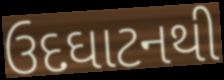
ઉદઘાટનથી